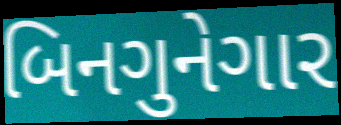
બિનગુનેગાર